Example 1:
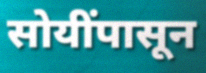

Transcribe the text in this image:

सोयींपासून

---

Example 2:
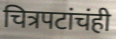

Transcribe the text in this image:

चित्रपटांचंही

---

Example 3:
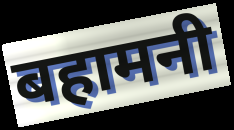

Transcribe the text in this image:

बहामनी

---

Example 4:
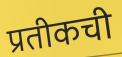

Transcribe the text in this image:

प्रतीकची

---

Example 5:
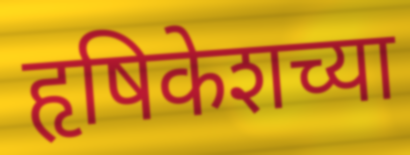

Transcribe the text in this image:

हृषिकेशच्या